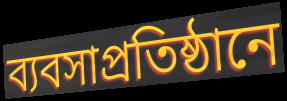
ব্যবসাপ্রতিষ্ঠানে